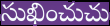
సుఖించుచు